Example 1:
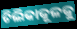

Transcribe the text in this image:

ଚିଲିକାକୂଳକୁ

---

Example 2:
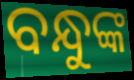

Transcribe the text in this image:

ବନ୍ଧୁଙ୍କ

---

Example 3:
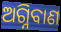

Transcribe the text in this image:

ଅଗ୍ନିବାଣ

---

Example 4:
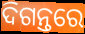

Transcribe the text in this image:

ଦିଗନ୍ତରେ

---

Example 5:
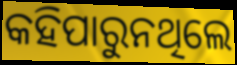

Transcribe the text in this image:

କହିପାରୁନଥିଲେ